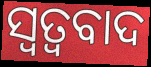
ସ୍ୱତ୍ୱବାଦ